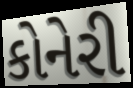
કોનેરી